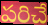
పరిచే